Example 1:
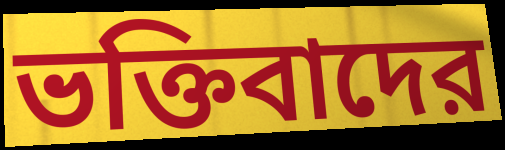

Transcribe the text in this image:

ভক্তিবাদের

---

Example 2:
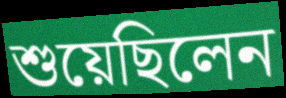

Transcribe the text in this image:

শুয়েছিলেন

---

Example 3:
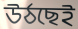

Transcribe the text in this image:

উঠছেই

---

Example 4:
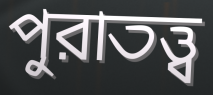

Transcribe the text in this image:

পুরাতত্ত্ব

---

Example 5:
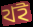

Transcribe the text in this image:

থই